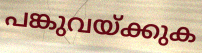
പങ്കുവയ്ക്കുക